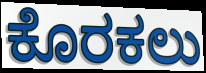
ಕೊರಕಲು